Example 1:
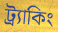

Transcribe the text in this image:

ট্র্যাকিং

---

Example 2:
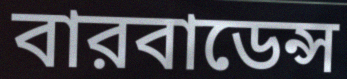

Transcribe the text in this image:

বারবাডেন্স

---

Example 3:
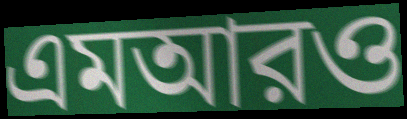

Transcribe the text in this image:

এমআরও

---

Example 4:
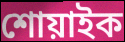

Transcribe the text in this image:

শোয়াইক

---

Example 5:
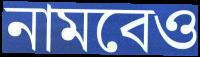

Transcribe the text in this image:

নামবেও